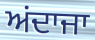
ਅਂਦਾਜਾ